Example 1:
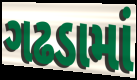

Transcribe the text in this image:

ગઢડામાં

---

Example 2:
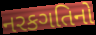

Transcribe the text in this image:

નરકગતિનો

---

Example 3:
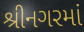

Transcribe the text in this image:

શ્રીનગરમાં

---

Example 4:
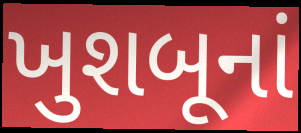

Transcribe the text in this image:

ખુશબૂનાં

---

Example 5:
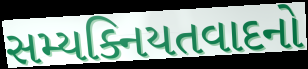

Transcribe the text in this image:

સમ્યક્નિયતવાદનો